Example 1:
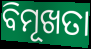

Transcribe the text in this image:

ବିମୂଖତା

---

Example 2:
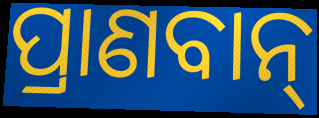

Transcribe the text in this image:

ପ୍ରାଣବାନ୍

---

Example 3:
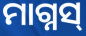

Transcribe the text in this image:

ମାଗ୍ନସ୍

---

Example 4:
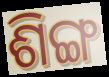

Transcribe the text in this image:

ଶିଙ୍ଗ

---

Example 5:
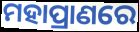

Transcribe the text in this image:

ମହାପ୍ରାଣରେ